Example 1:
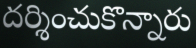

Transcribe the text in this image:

దర్శించుకొన్నారు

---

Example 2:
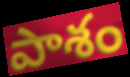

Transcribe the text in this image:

పాశం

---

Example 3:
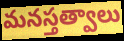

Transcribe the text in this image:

మనస్తత్వాలు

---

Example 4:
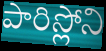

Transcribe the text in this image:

పారిస్లోని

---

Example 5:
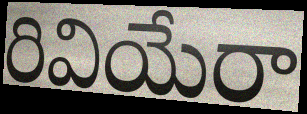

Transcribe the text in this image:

రివియేరా